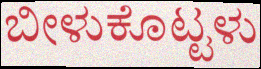
ಬೀಳುಕೊಟ್ಟಳು